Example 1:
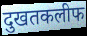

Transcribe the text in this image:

दुखतकलीफ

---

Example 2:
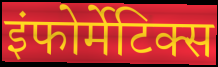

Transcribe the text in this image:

इंफोर्मेटिक्स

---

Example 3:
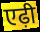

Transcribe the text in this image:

एढ़ी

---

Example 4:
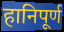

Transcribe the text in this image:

हानिपूर्ण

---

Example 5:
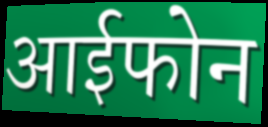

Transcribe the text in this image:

आईफोन